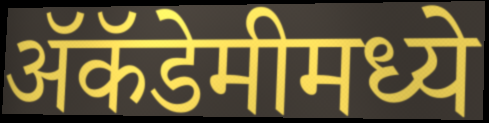
ॲकॅडेमीमध्ये